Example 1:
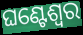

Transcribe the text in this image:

ଘଣ୍ଟେଶ୍ୱର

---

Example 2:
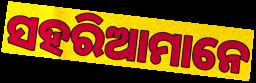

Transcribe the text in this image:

ସହରିଆମାନେ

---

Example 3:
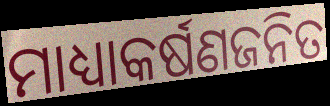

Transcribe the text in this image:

ମାଧ୍ୟାକର୍ଷଣଜନିତ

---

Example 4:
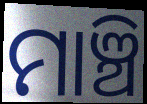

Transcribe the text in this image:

ମାଞ୍ଚି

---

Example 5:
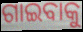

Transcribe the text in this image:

ଗାଇବାକୁ